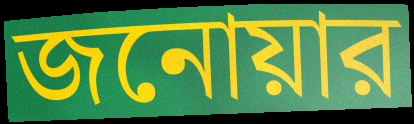
জনোয়ার